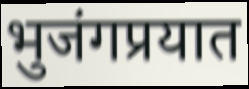
भुजंगप्रयात